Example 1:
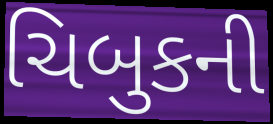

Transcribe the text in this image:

ચિબુકની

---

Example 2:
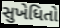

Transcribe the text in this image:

સુખેધિતો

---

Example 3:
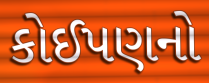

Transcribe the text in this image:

કોઈપણનો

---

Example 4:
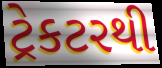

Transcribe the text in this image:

ટ્રેકટરથી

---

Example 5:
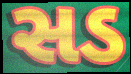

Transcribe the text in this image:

સડ